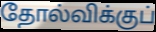
தோல்விக்குப்